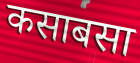
कसाबसा